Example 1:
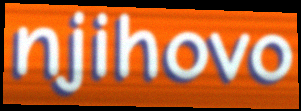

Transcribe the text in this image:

njihovo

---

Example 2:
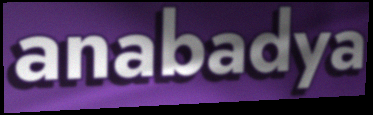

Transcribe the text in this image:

anabadya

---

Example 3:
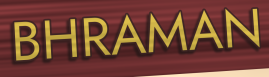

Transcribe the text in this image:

BHRAMAN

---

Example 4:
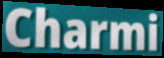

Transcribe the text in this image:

Charmi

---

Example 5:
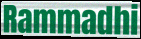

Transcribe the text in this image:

Rammadhi